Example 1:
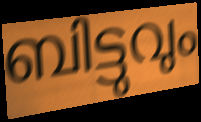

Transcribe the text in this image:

ബിട്ടുവും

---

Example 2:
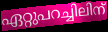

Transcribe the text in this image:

ഏറ്റുപറച്ചിലിന്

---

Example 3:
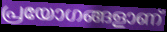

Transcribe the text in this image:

പ്രയോഗങ്ങളാണ്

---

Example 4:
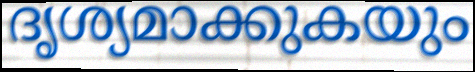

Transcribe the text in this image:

ദൃശ്യമാക്കുകയും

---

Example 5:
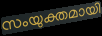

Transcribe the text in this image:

സംയുക്തമായി